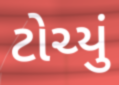
ટોચ્યું